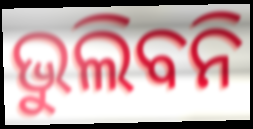
ଭୁଲିବନି